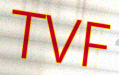
TVF